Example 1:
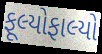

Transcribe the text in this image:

ફૂલ્યોફાલ્યો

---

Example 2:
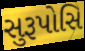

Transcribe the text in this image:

સુરૂપોસિ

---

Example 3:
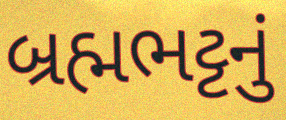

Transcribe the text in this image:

બ્રહ્મભટ્ટનું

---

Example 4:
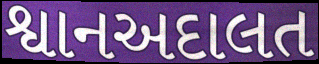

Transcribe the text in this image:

શ્વાનઅદાલત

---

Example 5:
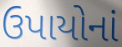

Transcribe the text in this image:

ઉપાયોનાં